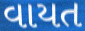
વાયત